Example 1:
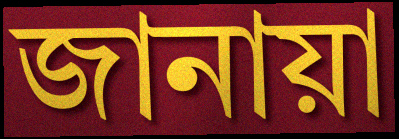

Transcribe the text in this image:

জানায়া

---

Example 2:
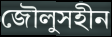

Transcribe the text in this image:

জৌলুসহীন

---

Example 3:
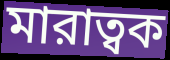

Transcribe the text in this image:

মারাত্বক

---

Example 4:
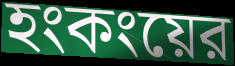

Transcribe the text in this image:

হংকংয়ের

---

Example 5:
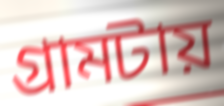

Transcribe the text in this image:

গ্রামটায়